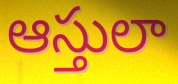
ఆస్తులా